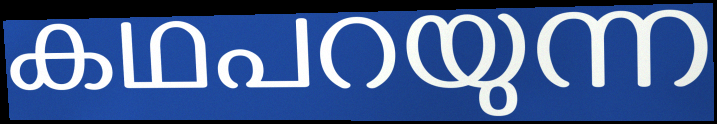
കഥപറയുന്ന